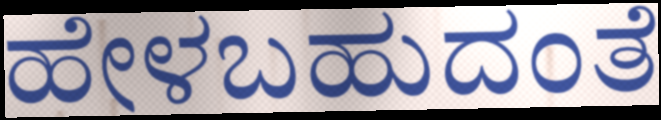
ಹೇಳಬಹುದಂತೆ